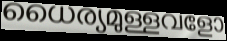
ധൈര്യമുള്ളവളോ